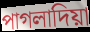
পাগলাদিয়া